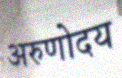
अरुणोदय